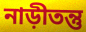
নাড়ীতন্তু